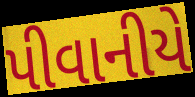
પીવાનીયે